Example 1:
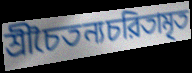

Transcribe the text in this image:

শ্রীচৈতন্যচরিতামৃত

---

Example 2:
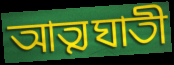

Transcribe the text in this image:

আত্মঘাতী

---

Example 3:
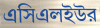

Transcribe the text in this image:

এসিএলইউর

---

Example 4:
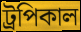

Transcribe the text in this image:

ট্রপিকাল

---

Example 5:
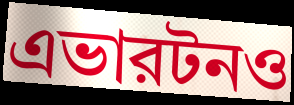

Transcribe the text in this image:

এভারটনও